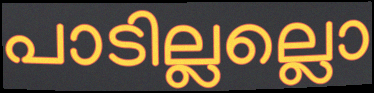
പാടില്ലല്ലൊ